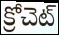
క్రోచెట్